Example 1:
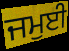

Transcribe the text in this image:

ਜਮੁਈ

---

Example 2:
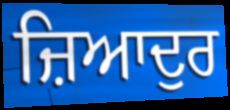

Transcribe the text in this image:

ਜ਼ਿਆਦੁਰ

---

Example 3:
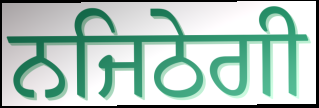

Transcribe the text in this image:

ਨਜਿਠੇਗੀ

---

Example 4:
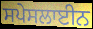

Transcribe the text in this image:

ਸਪੇਸਲਾਈਨ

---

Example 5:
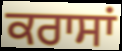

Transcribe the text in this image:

ਕਰਾਸਾਂ